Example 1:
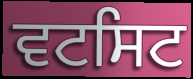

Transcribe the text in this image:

ਵਟਸਿਟ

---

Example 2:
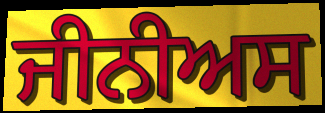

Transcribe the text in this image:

ਜੀਨੀਅਸ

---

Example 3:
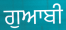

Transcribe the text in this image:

ਗੁਆਬੀ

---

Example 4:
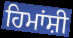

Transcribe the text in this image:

ਹਿਮਾਂਸ਼ੀ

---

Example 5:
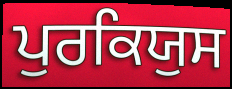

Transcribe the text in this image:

ਪੁਰਕਿਯੁਸ